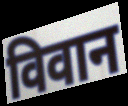
विवान